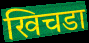
खिचडा